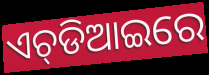
ଏଚ୍‌ଡିଆଇରେ